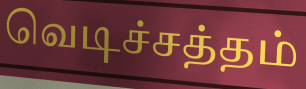
வெடிச்சத்தம்